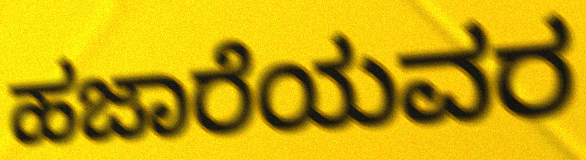
ಹಜಾರೆಯವರ